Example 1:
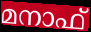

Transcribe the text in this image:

മനാഫ്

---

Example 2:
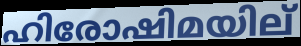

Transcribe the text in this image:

ഹിരോഷിമയില്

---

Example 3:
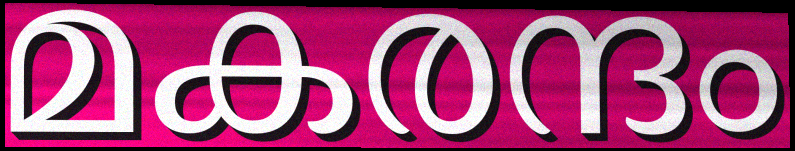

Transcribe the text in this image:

മകരന്ദം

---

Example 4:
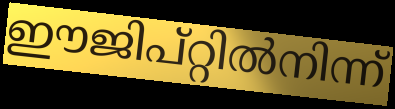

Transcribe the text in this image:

ഈജിപ്റ്റിൽനിന്ന്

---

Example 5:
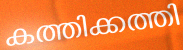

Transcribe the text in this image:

കത്തിക്കത്തി